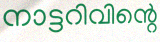
നാട്ടറിവിന്റെ